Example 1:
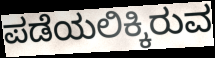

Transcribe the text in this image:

ಪಡೆಯಲಿಕ್ಕಿರುವ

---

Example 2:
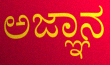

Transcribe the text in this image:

ಅಜ್ಞಾನ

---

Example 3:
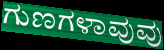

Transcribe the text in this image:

ಗುಣಗಳಾವುವು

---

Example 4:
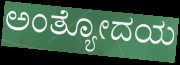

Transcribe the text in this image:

ಅಂತ್ಯೋದಯ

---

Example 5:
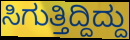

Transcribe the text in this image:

ಸಿಗುತ್ತಿದ್ದಿದ್ದು